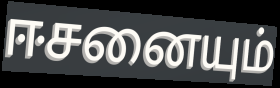
ஈசனையும்